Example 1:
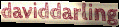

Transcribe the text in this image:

daviddarling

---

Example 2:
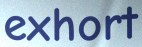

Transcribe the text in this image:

exhort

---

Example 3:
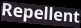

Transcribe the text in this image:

Repellent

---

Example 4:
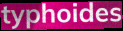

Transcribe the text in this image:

typhoides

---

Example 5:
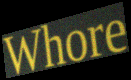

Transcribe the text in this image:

Whore